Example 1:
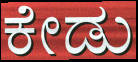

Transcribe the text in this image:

ಕೇಡು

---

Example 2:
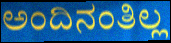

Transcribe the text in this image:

ಅಂದಿನಂತಿಲ್ಲ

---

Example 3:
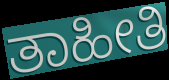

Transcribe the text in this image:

ತಾಹೀತಿ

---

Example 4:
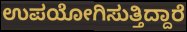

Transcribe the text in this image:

ಉಪಯೋಗಿಸುತ್ತಿದ್ದಾರೆ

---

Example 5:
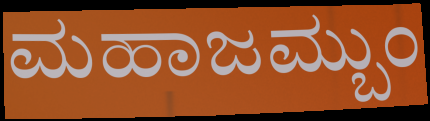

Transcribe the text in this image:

ಮಹಾಜಮ್ಬುಂ